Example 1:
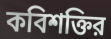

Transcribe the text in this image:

কবিশক্তির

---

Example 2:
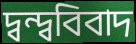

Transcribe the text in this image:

দ্বন্দ্ববিবাদ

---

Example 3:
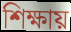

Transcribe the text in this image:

শিক্ষায়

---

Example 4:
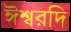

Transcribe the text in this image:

ঈশ্বরদি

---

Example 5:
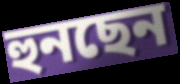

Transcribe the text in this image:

হুনছেন